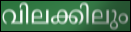
വിലക്കിലും